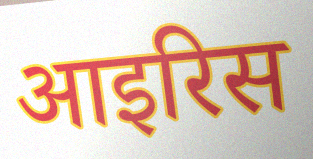
आइरिस